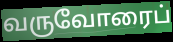
வருவோரைப்